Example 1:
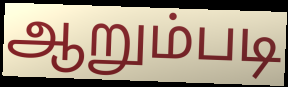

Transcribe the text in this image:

ஆறும்படி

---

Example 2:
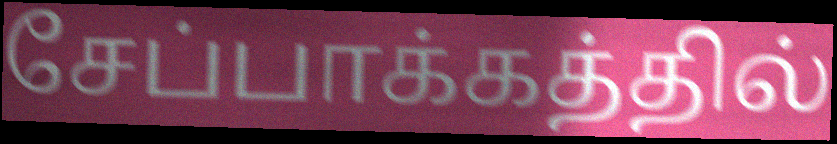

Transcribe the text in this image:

சேப்பாக்கத்தில்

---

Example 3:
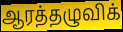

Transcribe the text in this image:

ஆரத்தழுவிக்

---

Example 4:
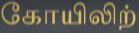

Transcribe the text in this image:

கோயிலிற்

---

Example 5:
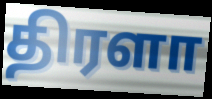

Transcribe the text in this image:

திரளா